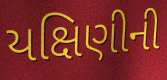
યક્ષિણીની